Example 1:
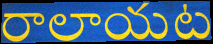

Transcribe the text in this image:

రాలాయట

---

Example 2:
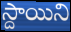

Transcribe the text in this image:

స్దాయిని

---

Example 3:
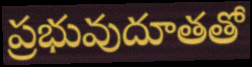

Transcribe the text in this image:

ప్రభువుదూతతో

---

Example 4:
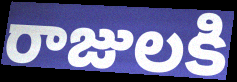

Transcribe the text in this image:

రాజులకి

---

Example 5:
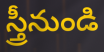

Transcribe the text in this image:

స్త్రీనుండి